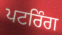
ਪਟਰਿੰਗ